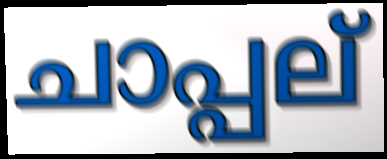
ചാപ്പല്